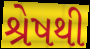
શ્રેષથી